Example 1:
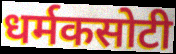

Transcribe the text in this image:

धर्मकसोटी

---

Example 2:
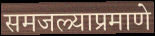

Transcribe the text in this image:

समजल्याप्रमाणे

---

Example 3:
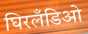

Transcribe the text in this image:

घिरलँडिओ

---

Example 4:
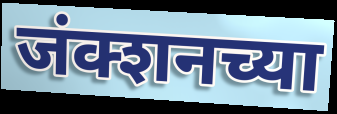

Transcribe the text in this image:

जंक्शनच्या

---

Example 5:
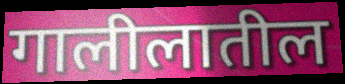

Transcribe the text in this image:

गालीलातील